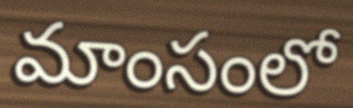
మాంసంలో